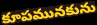
కూపమునకును